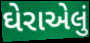
ઘેરાએલું